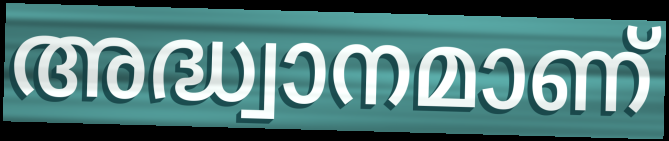
അദ്ധ്വാനമാണ്